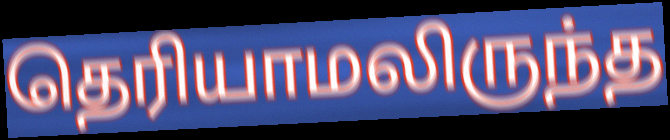
தெரியாமலிருந்த